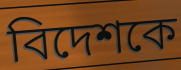
বিদেশকে